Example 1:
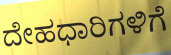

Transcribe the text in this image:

ದೇಹಧಾರಿಗಳಿಗೆ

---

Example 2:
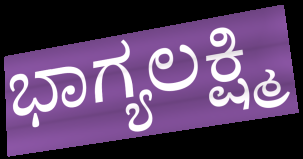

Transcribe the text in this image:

ಭಾಗ್ಯಲಕ್ಷ್ಮಿ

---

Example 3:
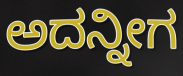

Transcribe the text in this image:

ಅದನ್ನೀಗ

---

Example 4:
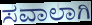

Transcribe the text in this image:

ಸವಾಲಾಗಿ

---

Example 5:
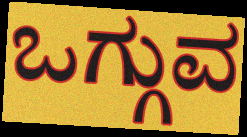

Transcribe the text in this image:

ಒಗ್ಗುವ